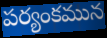
పర్యంకమున